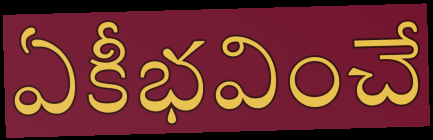
ఏకీభవించే